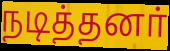
நடித்தனர்